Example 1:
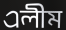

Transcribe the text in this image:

এলীম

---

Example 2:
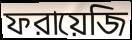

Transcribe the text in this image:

ফরায়েজি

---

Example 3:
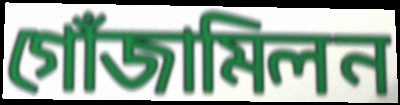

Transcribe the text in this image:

গোঁজামিলন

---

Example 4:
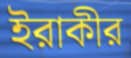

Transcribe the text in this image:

ইরাকীর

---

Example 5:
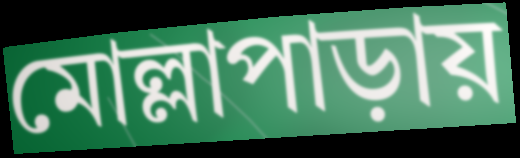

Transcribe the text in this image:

মোল্লাপাড়ায়